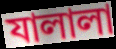
যালালা